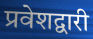
प्रवेशद्वारी